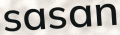
sasan